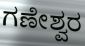
ಗಣೇಶ್ವರ